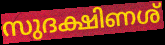
സുദക്ഷിണശ്